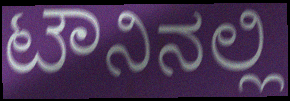
ಟೌನಿನಲ್ಲಿ